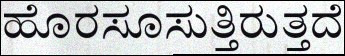
ಹೊರಸೂಸುತ್ತಿರುತ್ತದೆ